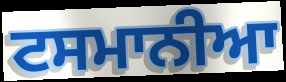
ਟਸਮਾਨੀਆ